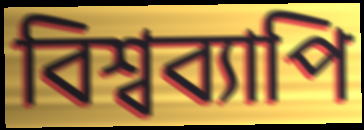
বিশ্বব্যাপি